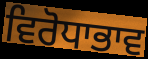
ਵਿਰੋਧਾਭਾਵ